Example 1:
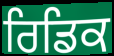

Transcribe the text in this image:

ਰਿਡਿਕ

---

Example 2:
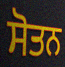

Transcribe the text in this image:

ਸੋਤਨ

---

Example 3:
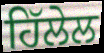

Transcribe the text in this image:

ਹਿੱਲੇਲ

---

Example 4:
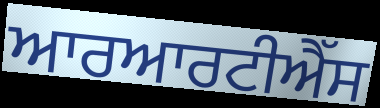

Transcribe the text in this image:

ਆਰਆਰਟੀਐੱਸ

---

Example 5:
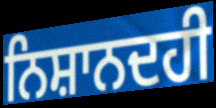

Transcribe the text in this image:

ਨਿਸ਼ਾਨਦਹੀ